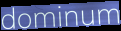
dominum